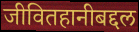
जीवितहानीबद्दल